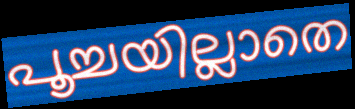
പൂച്ചയില്ലാതെ